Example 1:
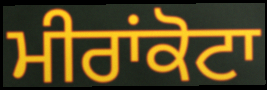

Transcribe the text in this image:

ਮੀਰਾਂਕੋਟਾ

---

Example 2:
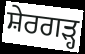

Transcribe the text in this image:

ਸ਼ੇਰਗੜ੍ਹ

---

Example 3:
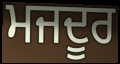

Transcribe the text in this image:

ਮਜਦੂਰ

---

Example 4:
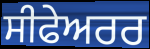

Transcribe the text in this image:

ਸੀਫੇਅਰਰ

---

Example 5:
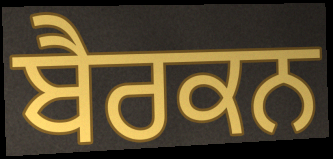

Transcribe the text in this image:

ਬੈਰਕਨ